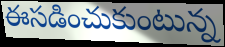
ఈసడించుకుంటున్న